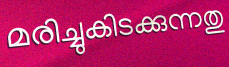
മരിച്ചുകിടക്കുന്നതു